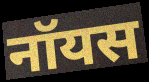
नॉयस